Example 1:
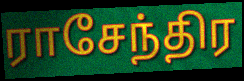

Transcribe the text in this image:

ராசேந்திர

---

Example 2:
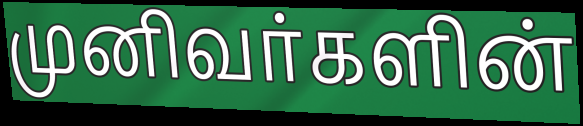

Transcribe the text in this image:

முனிவர்களின்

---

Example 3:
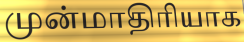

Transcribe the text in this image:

முன்மாதிரியாக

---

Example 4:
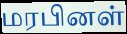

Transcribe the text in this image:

மரபினள்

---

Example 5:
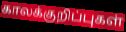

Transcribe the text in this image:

காலக்குறிப்புகள்